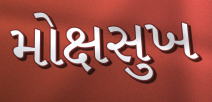
મોક્ષસુખ